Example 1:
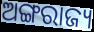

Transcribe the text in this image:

ଅଙ୍ଗରାଜ୍ୟ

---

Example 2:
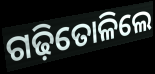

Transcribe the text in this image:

ଗଢ଼ିତୋଳିଲେ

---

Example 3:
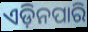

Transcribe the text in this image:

ଏଡ଼ିନପାରି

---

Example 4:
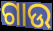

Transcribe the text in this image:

ଗାଉ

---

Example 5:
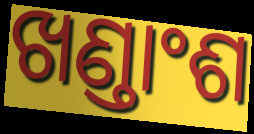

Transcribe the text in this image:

ଖଣ୍ଡାଂଶ